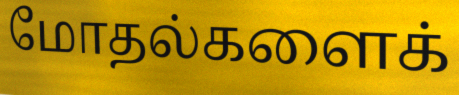
மோதல்களைக்